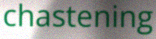
chastening